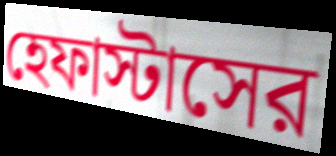
হেফাস্টাসের